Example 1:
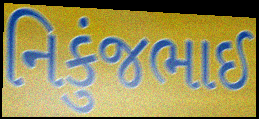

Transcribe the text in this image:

નિકુંજભાઈ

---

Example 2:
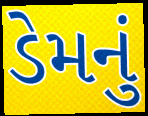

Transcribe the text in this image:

ડેમનું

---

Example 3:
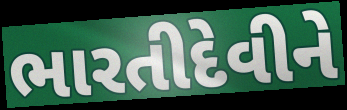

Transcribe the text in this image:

ભારતીદેવીને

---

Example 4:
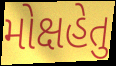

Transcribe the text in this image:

મોક્ષહેતુ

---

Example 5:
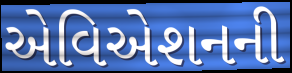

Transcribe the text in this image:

એવિએશનની